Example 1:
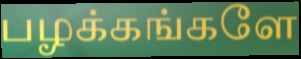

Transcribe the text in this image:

பழக்கங்களே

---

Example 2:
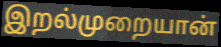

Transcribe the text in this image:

இறல்முறையான்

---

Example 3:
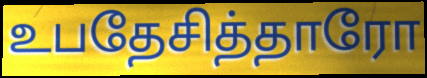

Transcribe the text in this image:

உபதேசித்தாரோ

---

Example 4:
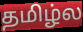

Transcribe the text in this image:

தமிழ்ல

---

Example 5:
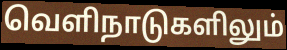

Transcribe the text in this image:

வெளிநாடுகளிலும்